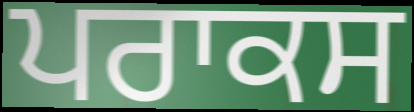
ਪਰਾਕਸ